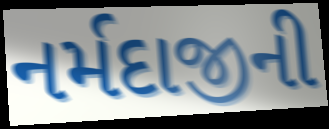
નર્મદાજીની